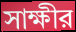
সাক্ষীর